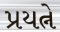
પ્રયત્ને